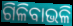
ଗିଳିବାଭଳି